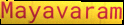
Mayavaram